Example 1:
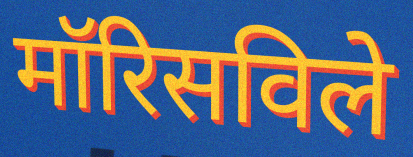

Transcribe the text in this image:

मॉरिसविले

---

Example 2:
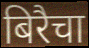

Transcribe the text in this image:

बिरैचा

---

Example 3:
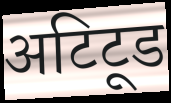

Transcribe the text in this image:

अटिटूड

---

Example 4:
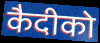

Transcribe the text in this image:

कैदीको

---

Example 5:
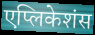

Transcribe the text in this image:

एप्लिकेशंस